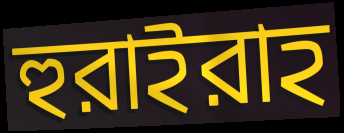
হুরাইরাহ